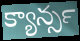
క్యాన్సర్‍